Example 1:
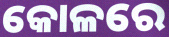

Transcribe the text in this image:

କୋଳରେ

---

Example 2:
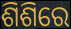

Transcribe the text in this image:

ଶିଶିରେ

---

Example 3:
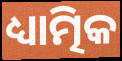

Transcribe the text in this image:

ଧ୍ୟାତ୍ମିକ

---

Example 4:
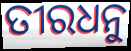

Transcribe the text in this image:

ତୀରଧନୁ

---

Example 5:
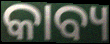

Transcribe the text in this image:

କାବ୍ୟ